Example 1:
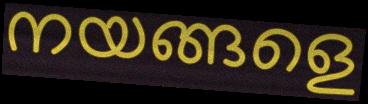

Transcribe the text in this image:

നയങ്ങളെ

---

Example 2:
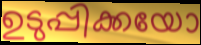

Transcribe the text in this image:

ഉടുപ്പിക്കയോ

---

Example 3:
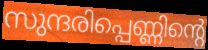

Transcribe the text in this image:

സുന്ദരിപ്പെണ്ണിന്റെ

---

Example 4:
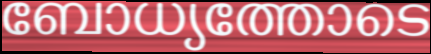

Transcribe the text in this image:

ബോധ്യത്തോടെ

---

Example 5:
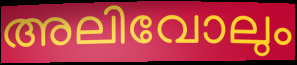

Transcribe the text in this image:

അലിവോലും